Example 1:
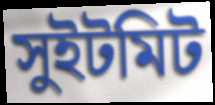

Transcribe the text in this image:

সুইটমিট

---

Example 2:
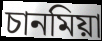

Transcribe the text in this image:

চানমিয়া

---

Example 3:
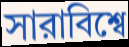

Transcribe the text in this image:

সারাবিশ্বে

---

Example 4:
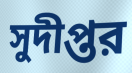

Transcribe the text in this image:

সুদীপ্তর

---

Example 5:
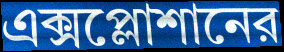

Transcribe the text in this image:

এক্সপ্লোশানের